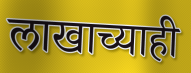
लाखाच्याही